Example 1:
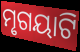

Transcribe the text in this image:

ମୃଗୟାଟି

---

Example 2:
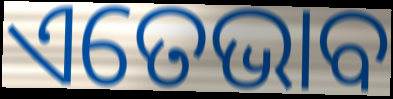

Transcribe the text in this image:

ଏତେଭାବ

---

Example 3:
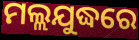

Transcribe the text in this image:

ମଲ୍ଲଯୁଦ୍ଧରେ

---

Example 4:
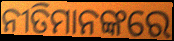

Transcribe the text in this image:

ନୀତିମାନଙ୍କରେ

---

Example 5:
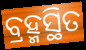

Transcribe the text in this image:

ବ୍ରହ୍ମସ୍ଥିତ